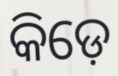
କିଡ଼େ